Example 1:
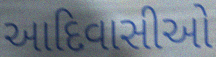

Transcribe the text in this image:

આદિવાસીઓ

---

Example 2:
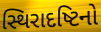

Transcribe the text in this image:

સ્થિરાદષ્ટિનો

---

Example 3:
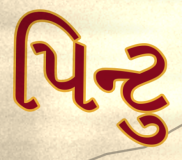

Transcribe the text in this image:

પિન્ટુ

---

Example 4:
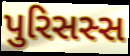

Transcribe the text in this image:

પુરિસસ્સ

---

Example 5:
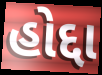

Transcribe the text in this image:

હોદ્દા